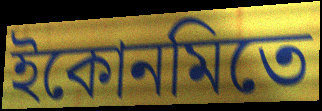
ইকোনমিতে